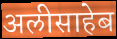
अलीसाहेब